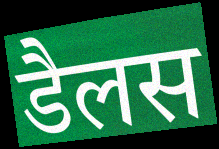
डैलस